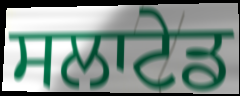
ਸਲਾਟੇਡ